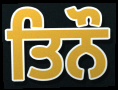
ਤਿਨੌ